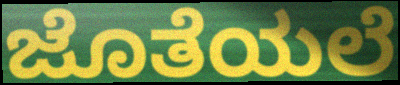
ಜೊತೆಯಲೆ